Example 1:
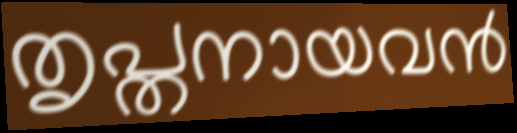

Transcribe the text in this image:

തൃപ്തനായവൻ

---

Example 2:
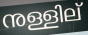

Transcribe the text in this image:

നുള്ളില്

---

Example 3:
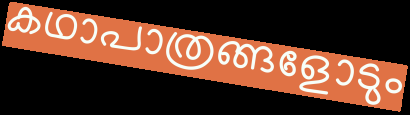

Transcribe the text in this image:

കഥാപാത്രങ്ങളോടും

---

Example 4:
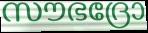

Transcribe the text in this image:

സൗഭദ്രോ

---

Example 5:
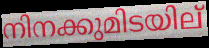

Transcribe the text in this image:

നിനക്കുമിടയില്